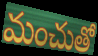
మంచుతో